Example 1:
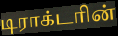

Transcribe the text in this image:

டிராக்டரின்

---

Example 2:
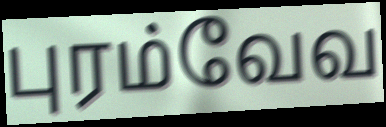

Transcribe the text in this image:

புரம்வேவ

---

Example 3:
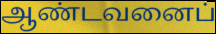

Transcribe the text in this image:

ஆண்டவனைப்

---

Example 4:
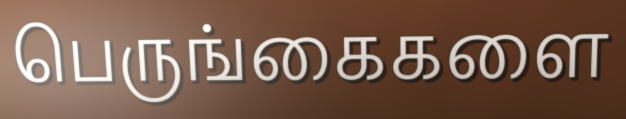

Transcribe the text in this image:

பெருங்கைகளை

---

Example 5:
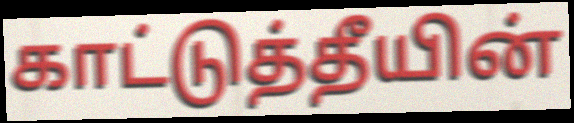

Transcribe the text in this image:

காட்டுத்தீயின்